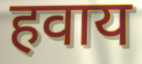
हवाय